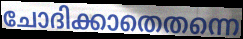
ചോദിക്കാതെതന്നെ